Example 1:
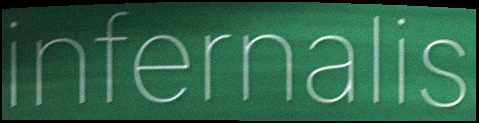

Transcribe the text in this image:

infernalis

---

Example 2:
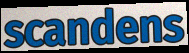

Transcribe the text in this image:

scandens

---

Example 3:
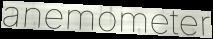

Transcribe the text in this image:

anemometer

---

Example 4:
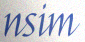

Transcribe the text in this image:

nsim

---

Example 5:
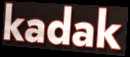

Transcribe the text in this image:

kadak